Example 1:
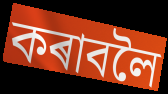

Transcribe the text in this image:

কৰাবলৈ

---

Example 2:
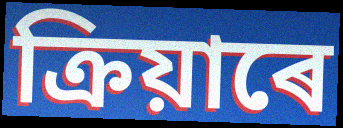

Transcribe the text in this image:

ক্ৰিয়াৰে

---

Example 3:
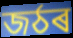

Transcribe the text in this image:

জঠৰ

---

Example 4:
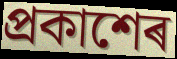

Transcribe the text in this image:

প্ৰকাশেৰ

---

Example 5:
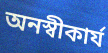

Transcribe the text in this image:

অনস্বীকাৰ্য